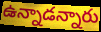
ఉన్నాడన్నారు